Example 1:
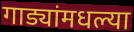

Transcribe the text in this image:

गाड्यांमधल्या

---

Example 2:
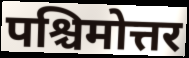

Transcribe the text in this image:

पश्चिमोत्तर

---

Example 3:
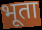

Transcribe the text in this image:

भूता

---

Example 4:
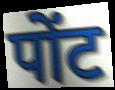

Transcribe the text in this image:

पोंट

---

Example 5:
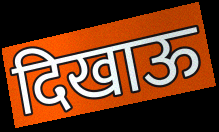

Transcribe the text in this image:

दिखाऊ